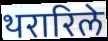
थरारिले